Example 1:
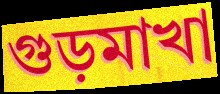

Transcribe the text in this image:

গুড়মাখা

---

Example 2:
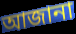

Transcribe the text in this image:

আজানা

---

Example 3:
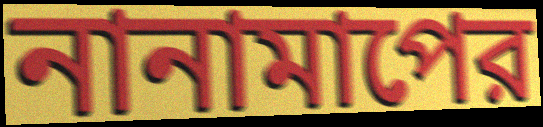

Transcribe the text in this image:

নানামাপের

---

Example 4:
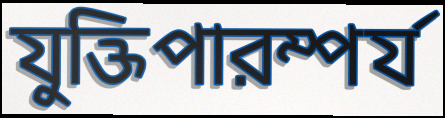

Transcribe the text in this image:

যুক্তিপারম্পর্য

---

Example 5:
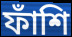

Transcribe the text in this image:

ফাঁশি